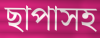
ছাপাসহ